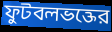
ফুটবলভক্তের